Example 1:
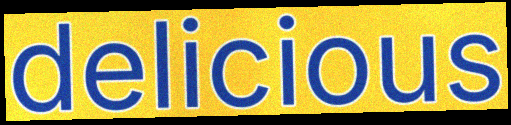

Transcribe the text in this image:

delicious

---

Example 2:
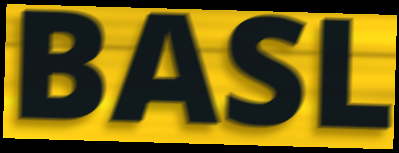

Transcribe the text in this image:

BASL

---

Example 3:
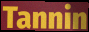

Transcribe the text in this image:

Tannin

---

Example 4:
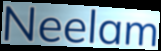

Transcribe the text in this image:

Neelam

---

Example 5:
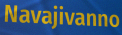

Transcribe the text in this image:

Navajivanno